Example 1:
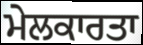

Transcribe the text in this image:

ਮੇਲਕਾਰਤਾ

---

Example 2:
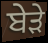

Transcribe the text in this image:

ਬੇੜੇ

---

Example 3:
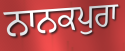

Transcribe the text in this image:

ਨਾਨਕਪੁਰਾ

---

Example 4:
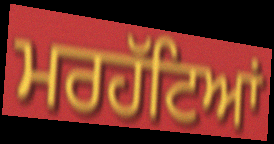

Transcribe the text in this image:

ਮਰਹੱਟਿਆਂ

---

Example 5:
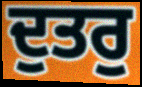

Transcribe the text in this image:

ਦੁਤਰੁ